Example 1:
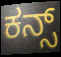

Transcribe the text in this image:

ಕನ್ಸ್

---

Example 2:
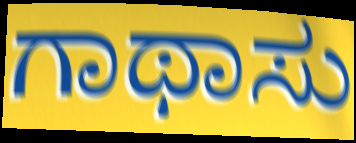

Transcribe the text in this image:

ಗಾಥಾಸು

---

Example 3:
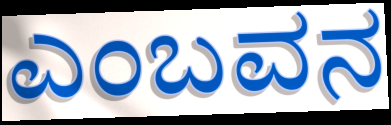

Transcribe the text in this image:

ಎಂಬವನ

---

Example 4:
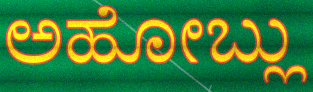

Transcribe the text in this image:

ಅಹೋಬ್ಲು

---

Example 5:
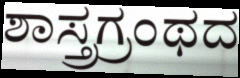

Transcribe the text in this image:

ಶಾಸ್ತ್ರಗ್ರಂಥದ